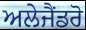
ਅਲੇਜੈਂਡਰੋ